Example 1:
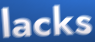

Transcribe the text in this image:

lacks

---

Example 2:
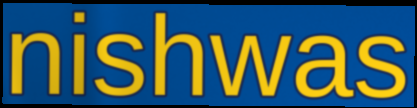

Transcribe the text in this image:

nishwas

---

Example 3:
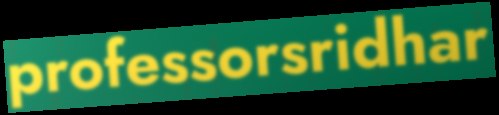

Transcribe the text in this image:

professorsridhar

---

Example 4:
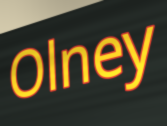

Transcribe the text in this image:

Olney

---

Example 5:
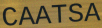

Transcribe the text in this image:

CAATSA